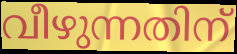
വീഴുന്നതിന്